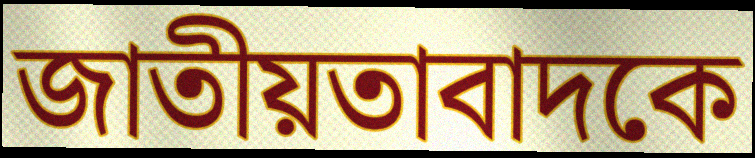
জাতীয়তাবাদকে